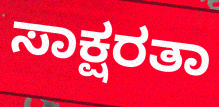
ಸಾಕ್ಷರತಾ